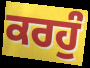
ਕਰਹੁੰ